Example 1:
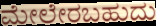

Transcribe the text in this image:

ಮೇಲೇರಬಹುದು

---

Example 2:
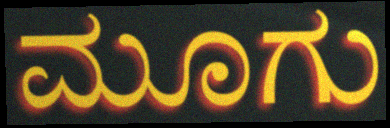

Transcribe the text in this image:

ಮೂಗು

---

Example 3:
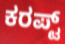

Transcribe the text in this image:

ಕರಪ್ಟ್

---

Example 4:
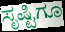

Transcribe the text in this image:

ಸೃಷ್ಟಿಗೂ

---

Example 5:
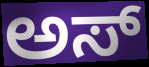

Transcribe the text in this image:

ಅಸ್